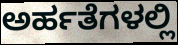
ಅರ್ಹತೆಗಳಲ್ಲಿ